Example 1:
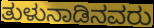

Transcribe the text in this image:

ತುಳುನಾಡಿನವರು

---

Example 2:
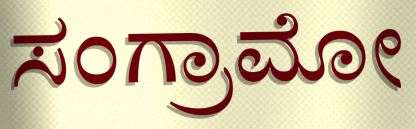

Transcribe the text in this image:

ಸಂಗ್ರಾಮೋ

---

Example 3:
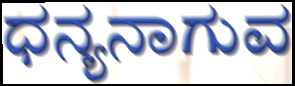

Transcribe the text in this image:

ಧನ್ಯನಾಗುವ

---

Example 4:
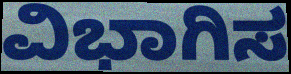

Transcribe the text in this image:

ವಿಭಾಗಿಸ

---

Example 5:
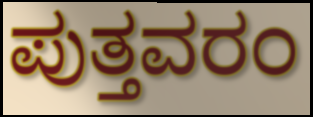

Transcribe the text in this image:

ಪುತ್ತವರಂ